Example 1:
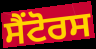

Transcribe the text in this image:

ਸੈਂਟੋਰਸ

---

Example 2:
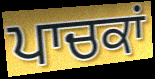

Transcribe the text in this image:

ਪਾਚਕਾਂ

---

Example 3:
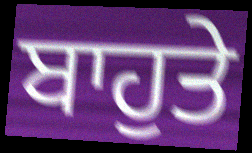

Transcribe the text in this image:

ਬਾਹੁਤੇ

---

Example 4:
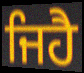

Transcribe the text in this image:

ਜਿਹੈ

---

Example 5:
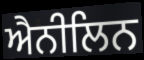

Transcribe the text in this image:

ਐਨੀਲਿਨ